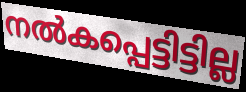
നൽകപ്പെട്ടിട്ടില്ല